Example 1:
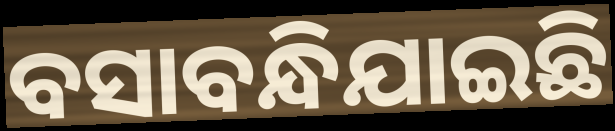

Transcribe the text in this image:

ବସାବନ୍ଧିଯାଇଛି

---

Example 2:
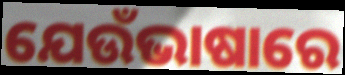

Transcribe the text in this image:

ଯେଉଁଭାଷାରେ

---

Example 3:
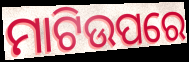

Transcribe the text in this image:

ମାଟିଉପରେ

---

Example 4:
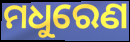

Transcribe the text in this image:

ମଧୁରେଣ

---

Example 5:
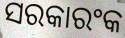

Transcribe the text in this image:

ସରକାରଂକ